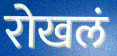
रोखलं